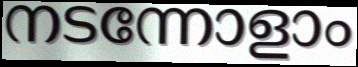
നടന്നോളാം